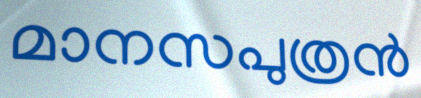
മാനസപുത്രൻ